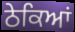
ਠੇਕਿਆਂ